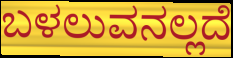
ಬಳಲುವನಲ್ಲದೆ